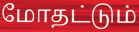
மோதட்டும்